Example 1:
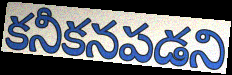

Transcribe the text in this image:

కనీకనపడని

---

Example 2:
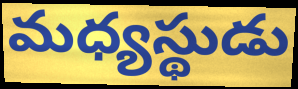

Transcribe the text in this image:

మధ్యస్థుడు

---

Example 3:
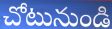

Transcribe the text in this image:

చోటునుండి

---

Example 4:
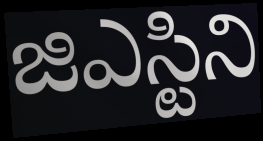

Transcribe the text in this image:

జిఎస్టిని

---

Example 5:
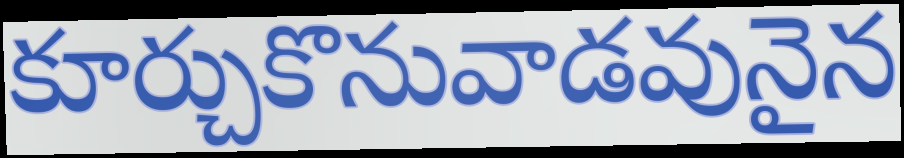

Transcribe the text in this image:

కూర్చుకొనువాడవునైన